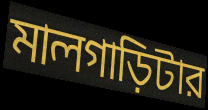
মালগাড়িটার